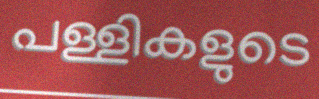
പള്ളികളുടെ